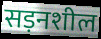
सड़नशील